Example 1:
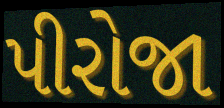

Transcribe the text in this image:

પીરોજા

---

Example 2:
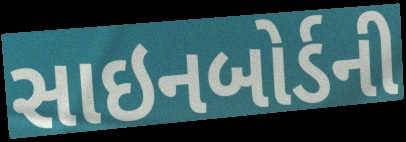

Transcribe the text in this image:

સાઇનબોર્ડની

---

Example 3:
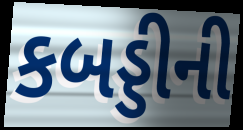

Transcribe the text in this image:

કબડ્ડીની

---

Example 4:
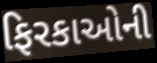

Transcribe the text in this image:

ફિરકાઓની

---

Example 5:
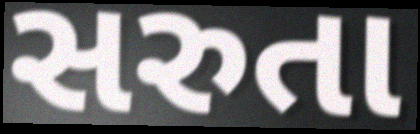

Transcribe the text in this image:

સરુતા